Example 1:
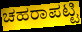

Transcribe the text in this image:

ಚಹರಾಪಟ್ಟಿ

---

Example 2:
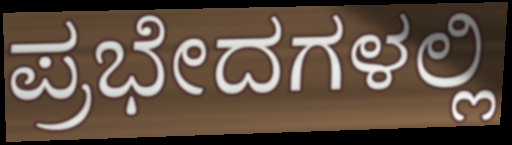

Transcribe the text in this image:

ಪ್ರಭೇದಗಳಲ್ಲಿ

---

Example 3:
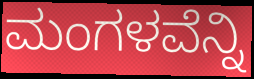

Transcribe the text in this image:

ಮಂಗಳವೆನ್ನಿ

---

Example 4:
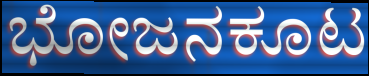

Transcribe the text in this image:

ಭೋಜನಕೂಟ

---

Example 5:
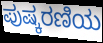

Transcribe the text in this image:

ಪುಷ್ಕರಣಿಯ